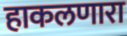
हाकलणारा